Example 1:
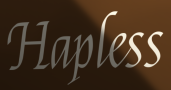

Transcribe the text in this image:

Hapless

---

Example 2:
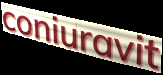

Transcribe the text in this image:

coniuravit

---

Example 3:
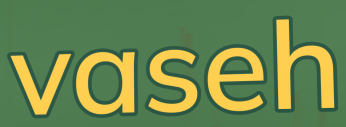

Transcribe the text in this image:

vaseh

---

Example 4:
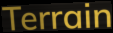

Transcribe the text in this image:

Terrain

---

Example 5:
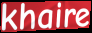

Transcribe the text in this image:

khaire